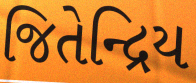
જિતેન્દ્રિય